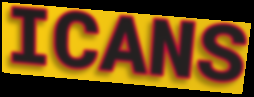
ICANS